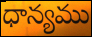
ధాన్యము